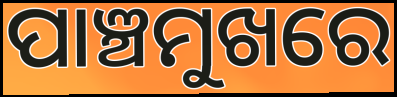
ପାଞ୍ଚମୁଖରେ